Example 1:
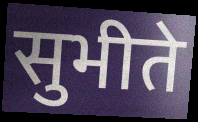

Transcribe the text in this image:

सुभीते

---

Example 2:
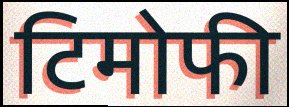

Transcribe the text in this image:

टिमोफी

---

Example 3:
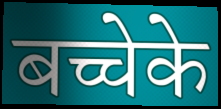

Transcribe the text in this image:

बच्चेके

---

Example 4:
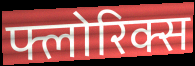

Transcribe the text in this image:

फ्लोरिक्स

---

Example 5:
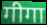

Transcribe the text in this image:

गीगा